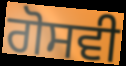
ਗੋਸਵੀ